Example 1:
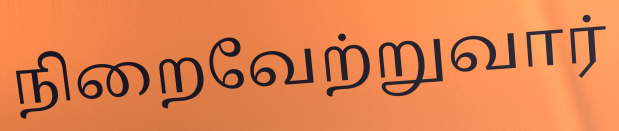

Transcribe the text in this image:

நிறைவேற்றுவார்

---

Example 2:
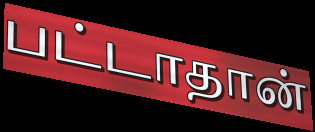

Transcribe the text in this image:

பட்டாதான்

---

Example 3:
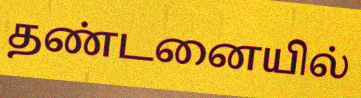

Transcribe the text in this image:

தண்டனையில்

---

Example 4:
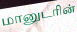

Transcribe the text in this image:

மானுடரின்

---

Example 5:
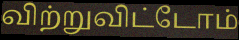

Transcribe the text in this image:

விற்றுவிட்டோம்